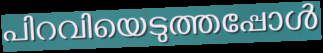
പിറവിയെടുത്തപ്പോൾ